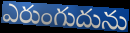
ఎరుంగుదును